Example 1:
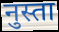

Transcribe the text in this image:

नुस्ता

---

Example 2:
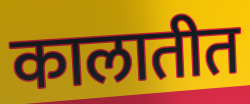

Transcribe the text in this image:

कालातीत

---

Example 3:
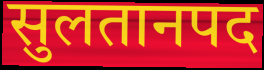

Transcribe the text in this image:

सुलतानपद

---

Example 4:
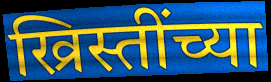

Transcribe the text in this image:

ख्रिस्तींच्या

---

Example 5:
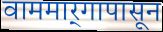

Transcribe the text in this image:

वाममार्गापासून